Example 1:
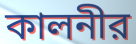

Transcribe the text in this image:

কালনীর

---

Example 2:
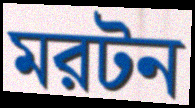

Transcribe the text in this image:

মরটন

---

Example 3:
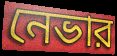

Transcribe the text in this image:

নেভার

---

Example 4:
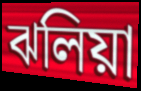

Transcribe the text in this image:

ঝলিয়া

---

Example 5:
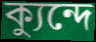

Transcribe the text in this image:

ক্যুন্দে